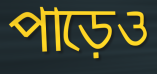
পাড়েও